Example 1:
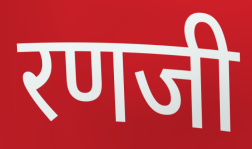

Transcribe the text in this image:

रणजी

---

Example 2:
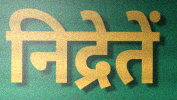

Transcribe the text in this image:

निद्रेतें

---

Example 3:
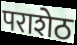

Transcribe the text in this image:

पराशेठ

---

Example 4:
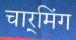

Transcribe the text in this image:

चार्मिंग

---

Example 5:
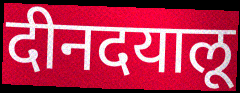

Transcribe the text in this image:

दीनदयालू